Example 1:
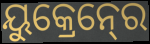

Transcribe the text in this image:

ୟୁକ୍ରେନ୍‍ରେ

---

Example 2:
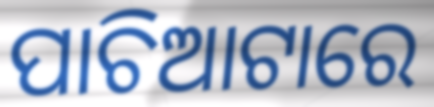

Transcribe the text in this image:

ପାଚିଆଟାରେ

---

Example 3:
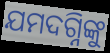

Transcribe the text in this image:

ଯମଦଗ୍ନିଙ୍କୁ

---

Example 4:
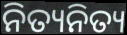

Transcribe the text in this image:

ନିତ୍ୟନିତ୍ୟ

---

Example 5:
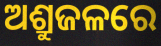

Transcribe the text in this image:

ଅଶ୍ରୁଜଳରେ